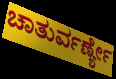
ಚಾತುರ್ವರ್ಣ್ಯೇ